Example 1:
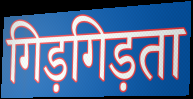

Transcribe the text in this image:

गिड़गिड़ता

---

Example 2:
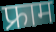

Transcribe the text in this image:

फ्राम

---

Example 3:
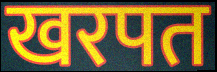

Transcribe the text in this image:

खरपत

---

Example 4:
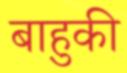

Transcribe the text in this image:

बाहुकी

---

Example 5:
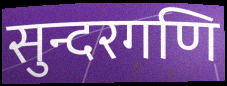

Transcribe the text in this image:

सुन्दरगणि